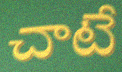
చాటే